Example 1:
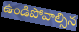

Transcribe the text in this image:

ఉండిపోవాల్సిన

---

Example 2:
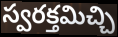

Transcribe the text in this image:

స్వరక్తమిచ్చి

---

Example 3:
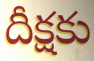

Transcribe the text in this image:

దీక్షకు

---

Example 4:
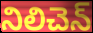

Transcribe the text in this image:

నిలిచెన్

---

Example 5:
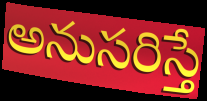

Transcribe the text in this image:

అనుసరిస్తే